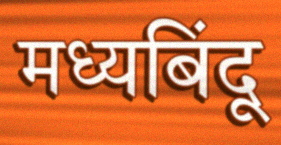
मध्यबिंदू